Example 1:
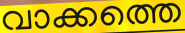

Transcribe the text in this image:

വാക്കത്തെ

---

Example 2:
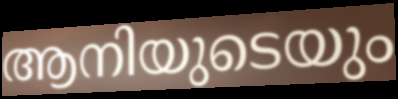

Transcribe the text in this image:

ആനിയുടെയും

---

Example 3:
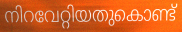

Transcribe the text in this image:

നിറവേറ്റിയതുകൊണ്ട്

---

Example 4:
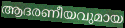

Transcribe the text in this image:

ആദരണീയവുമായ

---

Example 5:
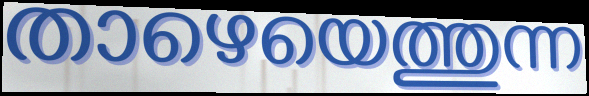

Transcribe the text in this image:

താഴെയെത്തുന്ന